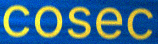
cosec